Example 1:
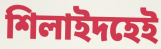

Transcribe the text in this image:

শিলাইদহেই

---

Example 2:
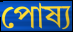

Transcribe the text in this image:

পোষ্য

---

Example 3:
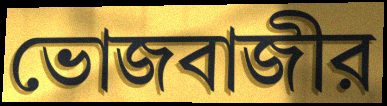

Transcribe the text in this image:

ভোজবাজীর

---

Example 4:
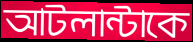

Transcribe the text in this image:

আটলান্টাকে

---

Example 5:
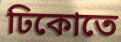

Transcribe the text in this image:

ঢিকোতে